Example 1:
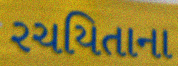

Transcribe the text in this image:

રચયિતાના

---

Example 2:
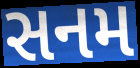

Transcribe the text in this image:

સનમ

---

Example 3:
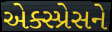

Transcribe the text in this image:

એક્સ્પ્રેસને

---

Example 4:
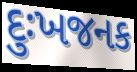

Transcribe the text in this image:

દુઃખજનક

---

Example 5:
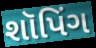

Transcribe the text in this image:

શૉપિંગ